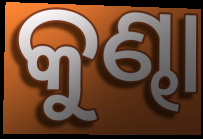
କୁଣ୍ଢା